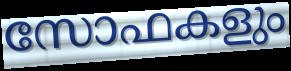
സോഫകളും